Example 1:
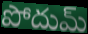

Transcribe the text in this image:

పోదుమ్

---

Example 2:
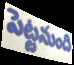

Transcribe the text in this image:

పెట్టనుంది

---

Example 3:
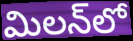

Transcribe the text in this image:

మిలన్‌లో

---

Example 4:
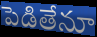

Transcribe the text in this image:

పెడితేనూ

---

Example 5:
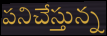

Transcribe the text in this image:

పనిచేస్తున్న